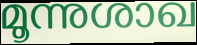
മൂന്നുശാഖ